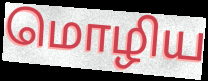
மொழிய